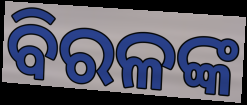
ବିରଳଙ୍କ